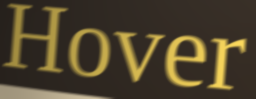
Hover